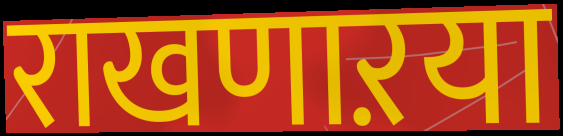
राखणाऱया